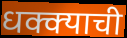
धक्क्याची